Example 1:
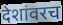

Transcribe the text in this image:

देशांवरच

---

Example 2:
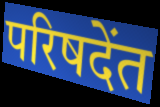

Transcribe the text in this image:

परिषदेंत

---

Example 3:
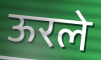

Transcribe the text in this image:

ऊरले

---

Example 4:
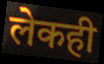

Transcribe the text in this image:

लेकही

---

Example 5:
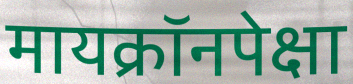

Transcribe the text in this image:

मायक्रॉनपेक्षा